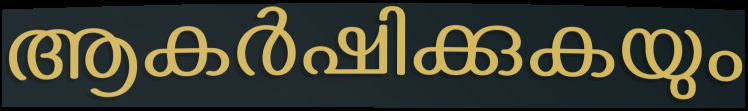
ആകർഷിക്കുകയും